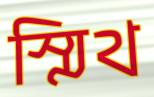
স্মিথ